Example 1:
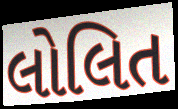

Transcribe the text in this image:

લોલિત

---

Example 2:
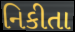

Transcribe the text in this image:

નિકીતા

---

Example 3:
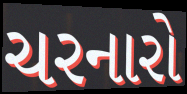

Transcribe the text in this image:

ચરનારો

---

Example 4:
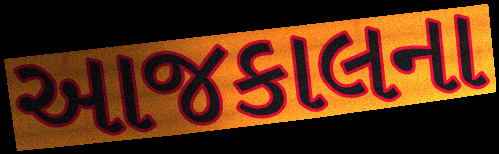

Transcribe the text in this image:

આજકાલના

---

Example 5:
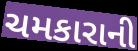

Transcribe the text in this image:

ચમકારાની